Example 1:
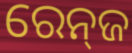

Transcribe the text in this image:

ରେନ୍‍ଜ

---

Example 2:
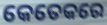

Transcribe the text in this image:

କେତେକରେ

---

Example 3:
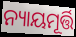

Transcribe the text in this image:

ନ୍ୟାୟମୂର୍ତ୍ତି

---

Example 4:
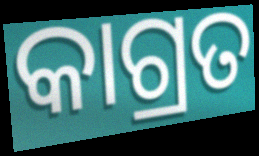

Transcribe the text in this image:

କାଗ୍ରତ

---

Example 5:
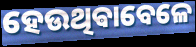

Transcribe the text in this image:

ହେଉଥିଵାବେଳେ